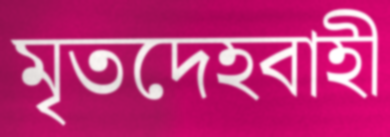
মৃতদেহবাহী